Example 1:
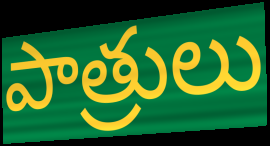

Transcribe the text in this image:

పాత్రులు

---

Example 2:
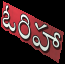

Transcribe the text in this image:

ఓరిహా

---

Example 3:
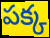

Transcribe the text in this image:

పక్క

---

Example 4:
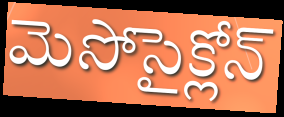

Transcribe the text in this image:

మెసోసైక్లోన్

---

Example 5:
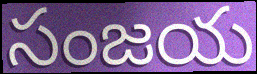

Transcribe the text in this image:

సంజయ